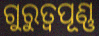
ଗୁରୁତ୍ବପୂଣ୍ଣ